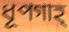
ধূপগাহ্